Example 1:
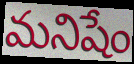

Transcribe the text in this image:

మనిషేం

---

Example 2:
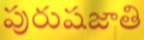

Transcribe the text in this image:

పురుషజాతి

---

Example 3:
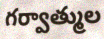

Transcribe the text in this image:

గర్వాత్ముల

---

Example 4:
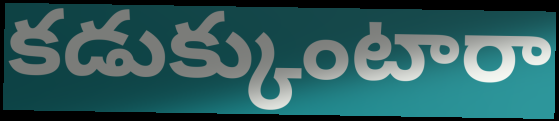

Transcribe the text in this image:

కడుక్కుంటారా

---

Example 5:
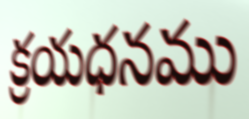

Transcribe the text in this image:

క్రయధనము